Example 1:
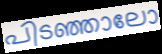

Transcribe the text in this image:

പിടഞ്ഞാലോ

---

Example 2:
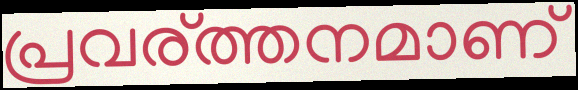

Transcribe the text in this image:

പ്രവര്ത്തനമാണ്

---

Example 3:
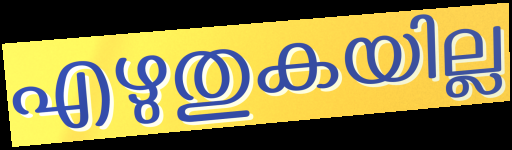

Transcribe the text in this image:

എഴുതുകയില്ല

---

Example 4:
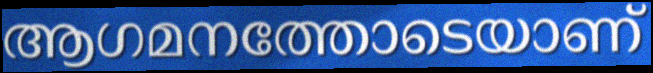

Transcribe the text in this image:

ആഗമനത്തോടെയാണ്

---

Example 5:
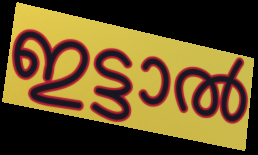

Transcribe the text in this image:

ഇട്ടാൽ